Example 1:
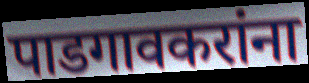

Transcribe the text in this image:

पाडगावकरांना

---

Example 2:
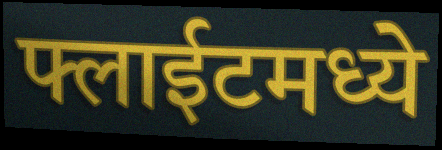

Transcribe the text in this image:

फ्लाईटमध्ये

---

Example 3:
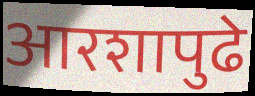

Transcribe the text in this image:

आरशापुढे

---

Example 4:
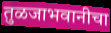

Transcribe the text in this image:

तुळजाभवानीचा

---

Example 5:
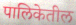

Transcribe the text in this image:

पालिकेतील